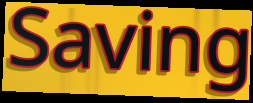
Saving